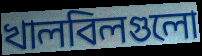
খালবিলগুলো